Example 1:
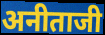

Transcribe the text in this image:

अनीताजी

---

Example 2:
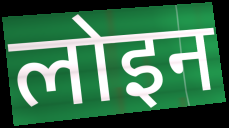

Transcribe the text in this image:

लोइन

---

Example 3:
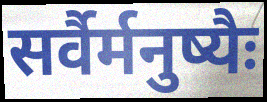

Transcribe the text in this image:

सर्वैर्मनुष्यैः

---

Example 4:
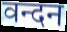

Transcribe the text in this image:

वन्दन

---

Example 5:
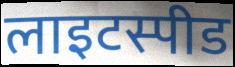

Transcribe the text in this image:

लाइटस्पीड